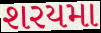
શરયમા